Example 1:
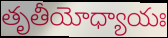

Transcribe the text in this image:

తృతీయోధ్యాయః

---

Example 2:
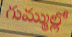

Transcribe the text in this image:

గుమ్ముల్లో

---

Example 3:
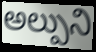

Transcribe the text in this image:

అల్పుని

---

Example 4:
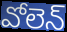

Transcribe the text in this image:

వోలెన్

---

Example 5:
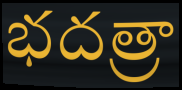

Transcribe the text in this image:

భదత్రా